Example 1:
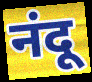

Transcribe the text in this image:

नंदू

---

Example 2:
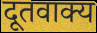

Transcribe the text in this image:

दूतवाक्य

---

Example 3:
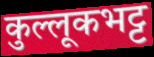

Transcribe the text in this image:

कुल्लूकभट्ट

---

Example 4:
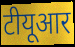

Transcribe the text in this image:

टीयूआर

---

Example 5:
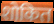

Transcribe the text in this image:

शोकित